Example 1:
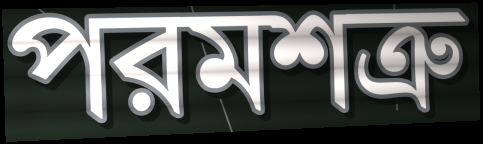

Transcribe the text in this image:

পরমশত্রু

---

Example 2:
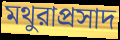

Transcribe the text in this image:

মথুরাপ্রসাদ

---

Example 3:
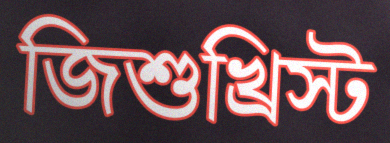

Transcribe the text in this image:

জিশুখ্রিস্ট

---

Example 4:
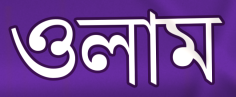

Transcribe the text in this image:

ওলাম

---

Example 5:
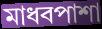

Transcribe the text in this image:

মাধবপাশা